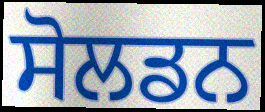
ਸੋਲਡਨ